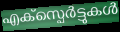
എക്സ്പെർട്ടുകൾ